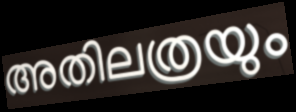
അതിലത്രയും